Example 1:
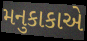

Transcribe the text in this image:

મનુકાકાએ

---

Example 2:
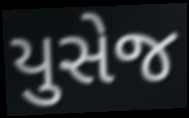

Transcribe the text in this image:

યુસેજ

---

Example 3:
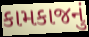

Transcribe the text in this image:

કામકાજનું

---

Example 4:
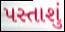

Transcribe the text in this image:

પસ્તાશું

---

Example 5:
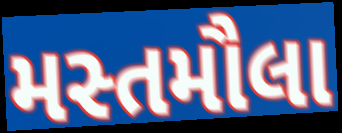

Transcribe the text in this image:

મસ્તમૌલા